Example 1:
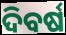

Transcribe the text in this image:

ଦିବର୍ଷ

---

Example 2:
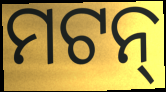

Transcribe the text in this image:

ମଟନ୍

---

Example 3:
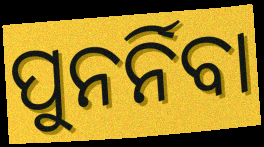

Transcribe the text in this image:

ପୁନର୍ନିବା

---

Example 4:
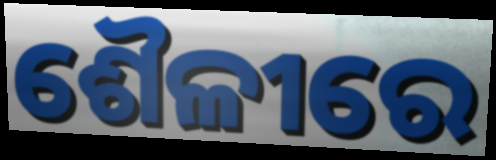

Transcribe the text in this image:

ଶୈଳୀରେ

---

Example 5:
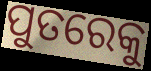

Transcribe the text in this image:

ପୁତରେକୁ